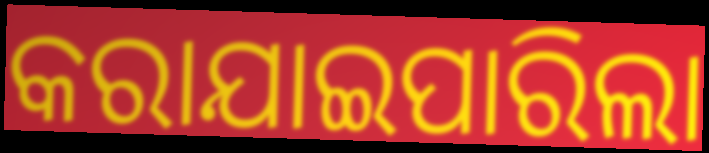
କରାଯାଇପାରିଲା